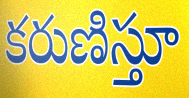
కరుణిస్తూ